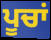
ਪੂਚਾਂ